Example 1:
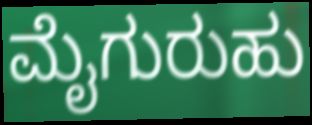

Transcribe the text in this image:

ಮೈಗುರುಹು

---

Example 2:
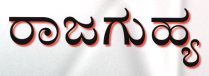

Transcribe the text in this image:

ರಾಜಗುಹ್ಯ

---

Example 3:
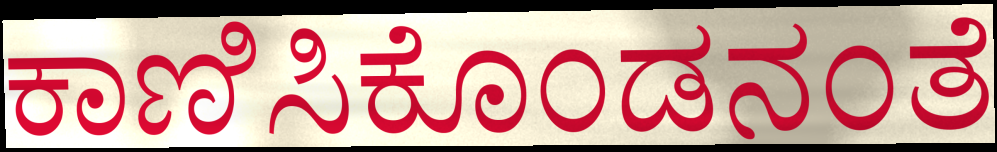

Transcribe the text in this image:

ಕಾಣಿಸಿಕೊಂಡನಂತೆ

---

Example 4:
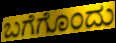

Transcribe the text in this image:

ಬಗೆಗೊಂದು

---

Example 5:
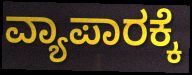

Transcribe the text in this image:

ವ್ಯಾಪಾರಕ್ಕೆ